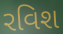
રવિશ